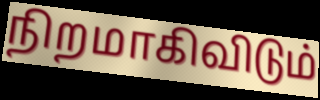
நிறமாகிவிடும்